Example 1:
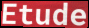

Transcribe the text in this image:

Etude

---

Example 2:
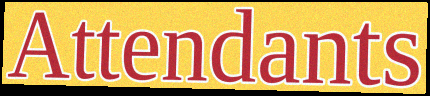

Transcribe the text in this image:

Attendants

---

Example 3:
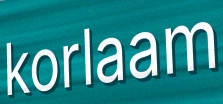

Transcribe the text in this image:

korlaam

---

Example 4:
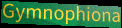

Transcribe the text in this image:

Gymnophiona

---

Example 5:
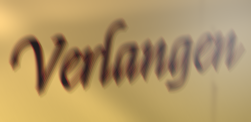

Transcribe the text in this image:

Verlangen